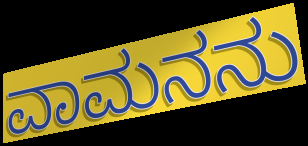
ವಾಮನನು